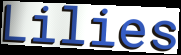
Lilies